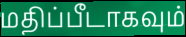
மதிப்பீடாகவும்